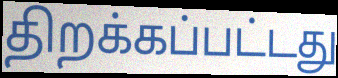
திறக்கப்பட்டது